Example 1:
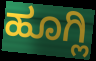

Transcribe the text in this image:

ಹೂಗ್ಲಿ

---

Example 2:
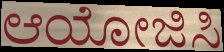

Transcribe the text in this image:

ಆಯೋಜಿಸಿ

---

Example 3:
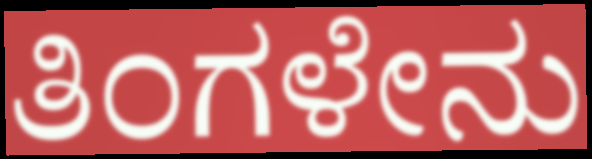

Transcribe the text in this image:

ತಿಂಗಳೇನು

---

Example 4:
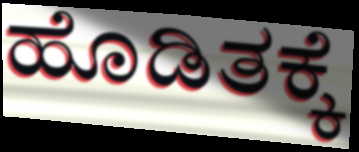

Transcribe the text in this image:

ಹೊಡಿತಕ್ಕೆ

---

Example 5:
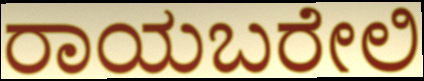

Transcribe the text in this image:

ರಾಯಬರೇಲಿ